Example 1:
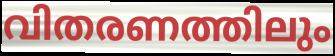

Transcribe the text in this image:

വിതരണത്തിലും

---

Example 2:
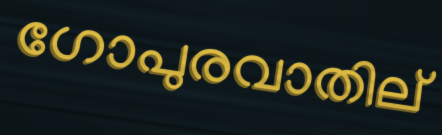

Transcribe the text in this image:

ഗോപുരവാതില്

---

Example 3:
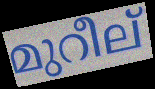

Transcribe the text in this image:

മുറീല്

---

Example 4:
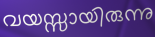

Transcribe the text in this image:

വയസ്സായിരുന്നു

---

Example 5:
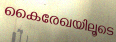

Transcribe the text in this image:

കൈരേഖയിലൂടെ